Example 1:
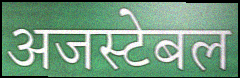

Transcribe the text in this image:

अजस्टेबल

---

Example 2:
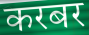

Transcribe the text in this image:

करबर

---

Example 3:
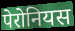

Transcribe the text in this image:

पेरोनियस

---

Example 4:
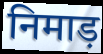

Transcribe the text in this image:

निमाड़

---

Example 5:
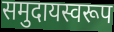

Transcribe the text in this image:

समुदायस्वरूप